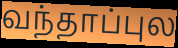
வந்தாப்புல